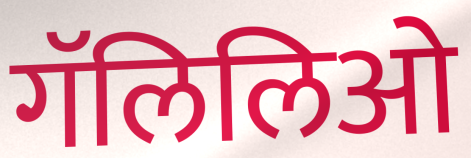
गॅलिलिओ